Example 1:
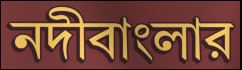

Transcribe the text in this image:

নদীবাংলার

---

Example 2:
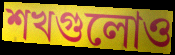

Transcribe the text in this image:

শখগুলোও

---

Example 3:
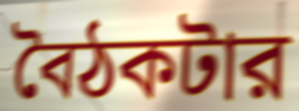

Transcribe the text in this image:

বৈঠকটার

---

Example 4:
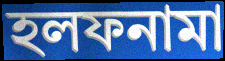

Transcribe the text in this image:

হলফনামা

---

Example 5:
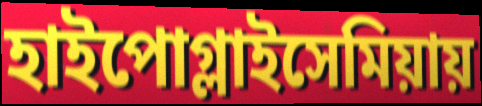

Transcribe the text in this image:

হাইপোগ্লাইসেমিয়ায়